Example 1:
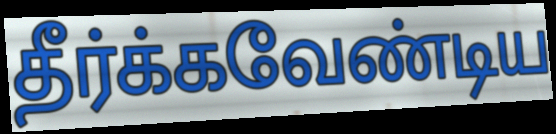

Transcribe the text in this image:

தீர்க்கவேண்டிய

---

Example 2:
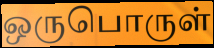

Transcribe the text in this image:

ஒருபொருள்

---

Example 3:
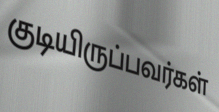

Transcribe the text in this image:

குடியிருப்பவர்கள்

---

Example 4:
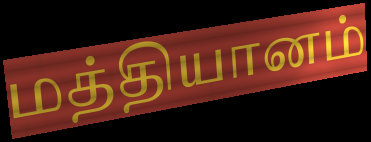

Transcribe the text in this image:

மத்தியானம்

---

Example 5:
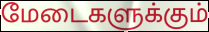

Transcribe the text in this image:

மேடைகளுக்கும்